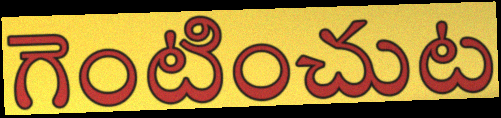
గెంటించుట